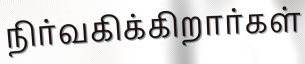
நிர்வகிக்கிறார்கள்